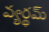
వ్యర్థమ్